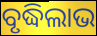
ବୃଦ୍ଧିଲାଭ